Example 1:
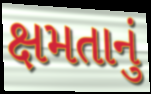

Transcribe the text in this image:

ક્ષમતાનું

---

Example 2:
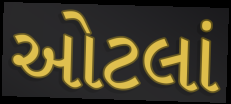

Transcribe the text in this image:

ઓટલાં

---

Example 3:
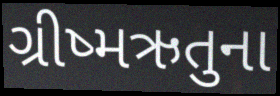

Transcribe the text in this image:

ગ્રીષ્મઋતુના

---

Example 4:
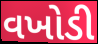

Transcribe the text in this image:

વખોડી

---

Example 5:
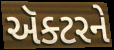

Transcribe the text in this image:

ઍક્ટરને